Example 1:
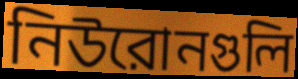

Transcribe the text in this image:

নিউরোনগুলি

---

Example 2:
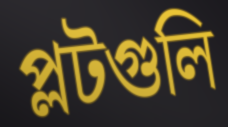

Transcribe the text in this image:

প্লটগুলি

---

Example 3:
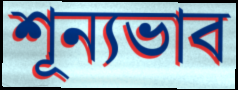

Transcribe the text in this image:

শূন্যভাব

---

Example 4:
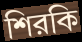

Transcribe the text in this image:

শিরকি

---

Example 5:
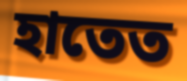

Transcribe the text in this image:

হাতেত